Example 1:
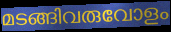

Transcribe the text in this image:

മടങ്ങിവരുവോളം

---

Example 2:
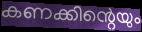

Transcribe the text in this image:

കണക്കിന്റെയും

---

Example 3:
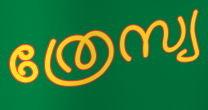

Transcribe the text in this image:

ത്രേസ്യ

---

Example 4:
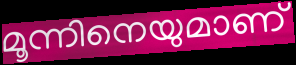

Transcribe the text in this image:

മൂന്നിനെയുമാണ്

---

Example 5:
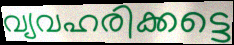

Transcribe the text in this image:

വ്യവഹരിക്കട്ടെ